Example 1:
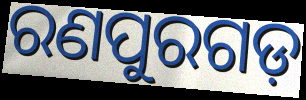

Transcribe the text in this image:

ରଣପୁରଗଡ଼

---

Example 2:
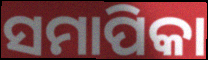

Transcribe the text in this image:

ସମାପିକା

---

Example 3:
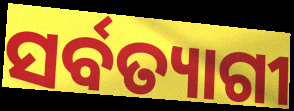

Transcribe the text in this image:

ସର୍ବତ୍ୟାଗୀ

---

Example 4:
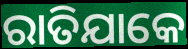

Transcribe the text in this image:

ରାତିଯାକେ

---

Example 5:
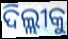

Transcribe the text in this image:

ଦିଲ୍ଲୀକୁ